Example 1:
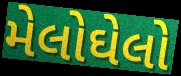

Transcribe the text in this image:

મેલોઘેલો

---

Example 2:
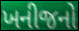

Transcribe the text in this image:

ખનીજનો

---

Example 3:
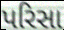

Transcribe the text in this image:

પરિસા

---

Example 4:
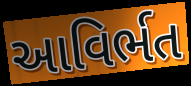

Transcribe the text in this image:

આવિર્ભત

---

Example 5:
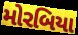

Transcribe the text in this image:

મોરબિયા